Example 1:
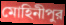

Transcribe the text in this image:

মোহিনীপুর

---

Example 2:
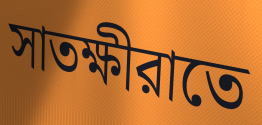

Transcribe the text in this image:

সাতক্ষীরাতে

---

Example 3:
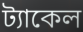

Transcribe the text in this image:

ট্যাকেল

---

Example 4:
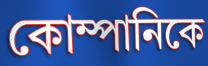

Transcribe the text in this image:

কোম্পানিকে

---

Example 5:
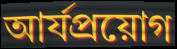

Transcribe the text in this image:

আর্যপ্রয়োগ